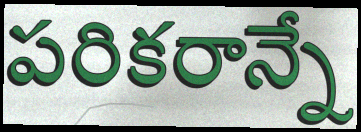
పరికరాన్నే